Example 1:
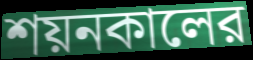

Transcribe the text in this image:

শয়নকালের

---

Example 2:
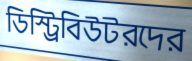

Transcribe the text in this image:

ডিস্ট্রিবিউটরদের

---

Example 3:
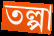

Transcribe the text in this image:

তল্পা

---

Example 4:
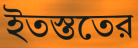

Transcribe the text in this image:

ইতস্ততের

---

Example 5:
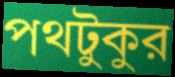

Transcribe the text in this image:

পথটুকুর